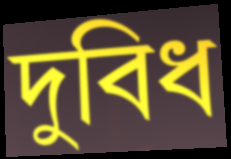
দুবিধ